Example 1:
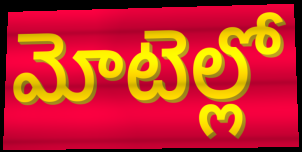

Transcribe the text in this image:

మోటెల్లో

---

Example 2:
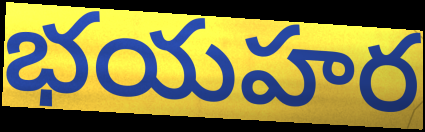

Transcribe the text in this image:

భయహర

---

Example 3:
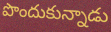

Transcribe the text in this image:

పొందుకున్నాడు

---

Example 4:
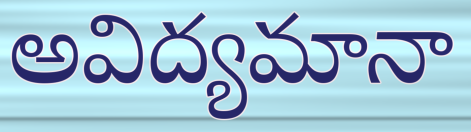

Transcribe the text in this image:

అవిద్యమానా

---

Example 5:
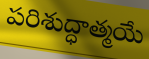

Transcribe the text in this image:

పరిశుద్ధాత్మయే